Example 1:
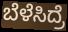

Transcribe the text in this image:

ಬೆಳೆಸಿದ್ರೆ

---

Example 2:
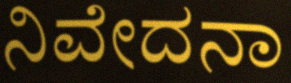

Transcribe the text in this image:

ನಿವೇದನಾ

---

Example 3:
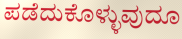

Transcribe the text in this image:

ಪಡೆದುಕೊಳ್ಳುವುದೂ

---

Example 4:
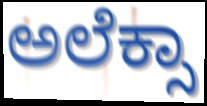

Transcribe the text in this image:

ಅಲೆಕ್ಸಾ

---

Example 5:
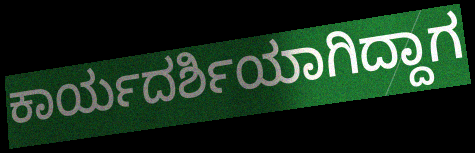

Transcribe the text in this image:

ಕಾರ್ಯದರ್ಶಿಯಾಗಿದ್ದಾಗ